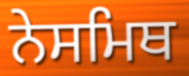
ਨੇਸਮਿਥ